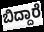
ಬಿದ್ದಾರೆ